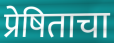
प्रेषिताचा